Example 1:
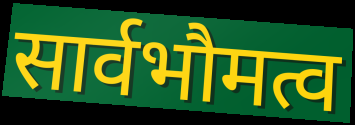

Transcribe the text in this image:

सार्वभौमत्व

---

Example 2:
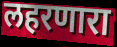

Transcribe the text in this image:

लहरणारा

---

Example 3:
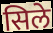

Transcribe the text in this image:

सिले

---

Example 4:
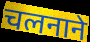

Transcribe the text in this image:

चलनाने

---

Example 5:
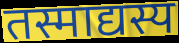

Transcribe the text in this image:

तस्माद्यस्य